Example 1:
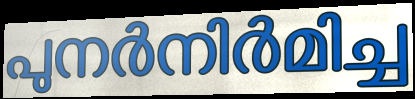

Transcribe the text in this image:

പുനർനിർമിച്ച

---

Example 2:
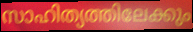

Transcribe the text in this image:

സാഹിത്യത്തിലേക്കും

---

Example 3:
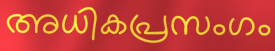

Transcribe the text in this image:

അധികപ്രസംഗം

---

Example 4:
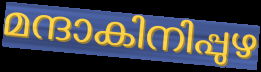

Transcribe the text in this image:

മന്ദാകിനിപ്പുഴ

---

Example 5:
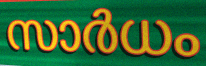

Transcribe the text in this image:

സാർധം